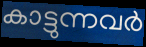
കാട്ടുന്നവർ